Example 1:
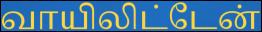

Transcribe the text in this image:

வாயிலிட்டேன்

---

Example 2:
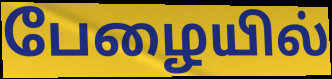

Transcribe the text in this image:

பேழையில்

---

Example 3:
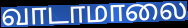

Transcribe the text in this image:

வாடாமாலை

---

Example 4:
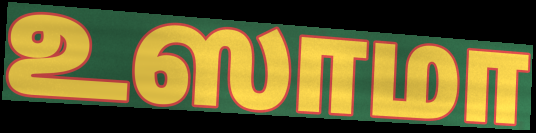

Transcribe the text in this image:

உஸாமா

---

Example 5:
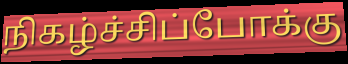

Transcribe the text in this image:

நிகழ்ச்சிப்போக்கு